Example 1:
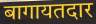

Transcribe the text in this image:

बागायतदार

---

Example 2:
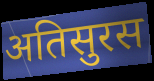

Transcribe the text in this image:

अतिसुरस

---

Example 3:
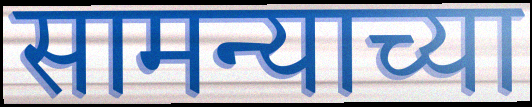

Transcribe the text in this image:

सामन्याच्या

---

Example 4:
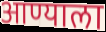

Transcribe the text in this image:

आण्याला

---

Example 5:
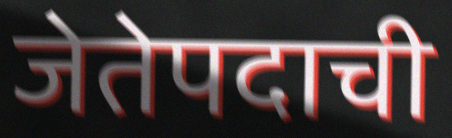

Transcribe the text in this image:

जेतेपदाची